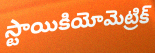
స్టాయికియోమెట్రిక్